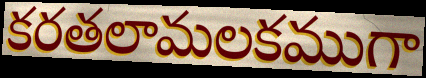
కరతలామలకముగా